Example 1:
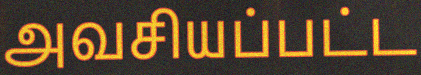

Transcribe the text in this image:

அவசியப்பட்ட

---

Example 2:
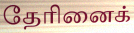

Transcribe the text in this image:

தேரினைக்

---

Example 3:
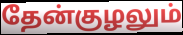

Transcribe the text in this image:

தேன்குழலும்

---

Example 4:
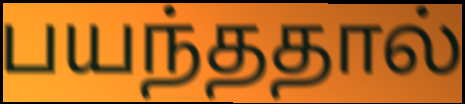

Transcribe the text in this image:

பயந்ததால்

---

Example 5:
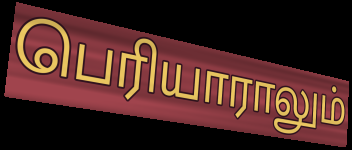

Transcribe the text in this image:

பெரியாராலும்